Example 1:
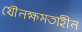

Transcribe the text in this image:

যৌনক্ষমতাহীন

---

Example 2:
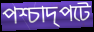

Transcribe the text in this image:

পশ্চাদ্‌পটে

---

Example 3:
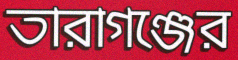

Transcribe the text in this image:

তারাগঞ্জের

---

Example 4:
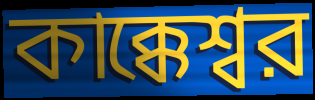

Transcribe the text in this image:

কাক্কেশ্বর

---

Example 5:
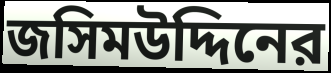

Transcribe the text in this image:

জসিমউদ্দিনের